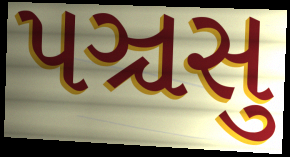
પઞ્ચસુ